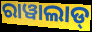
ରାୱାଲାଡ୍